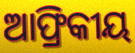
ଆଫ୍ରିକୀୟ